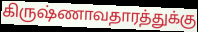
கிருஷ்ணாவதாரத்துக்கு